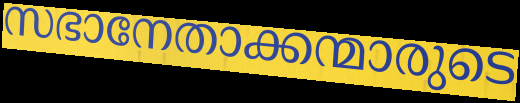
സഭാനേതാക്കന്മാരുടെ